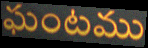
ఘంటము